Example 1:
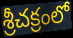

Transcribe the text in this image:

శ్రీచక్రంలో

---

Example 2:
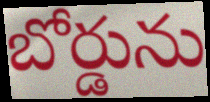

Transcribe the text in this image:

బోర్డును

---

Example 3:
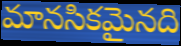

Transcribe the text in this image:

మానసికమైనది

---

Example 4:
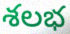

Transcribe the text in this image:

శలభ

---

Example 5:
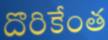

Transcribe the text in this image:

దొరికేంత